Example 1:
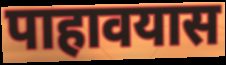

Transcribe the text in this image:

पाहावयास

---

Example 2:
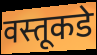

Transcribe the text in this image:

वस्तूकडे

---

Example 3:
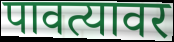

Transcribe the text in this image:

पावत्यावर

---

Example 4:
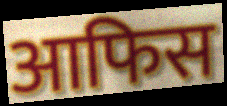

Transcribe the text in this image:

आफिस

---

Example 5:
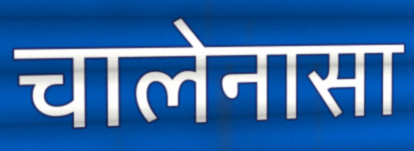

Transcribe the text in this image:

चालेनासा